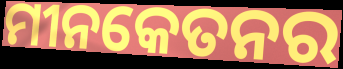
ମୀନକେତନର